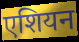
एशियन